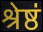
श्रेष्ठं॑